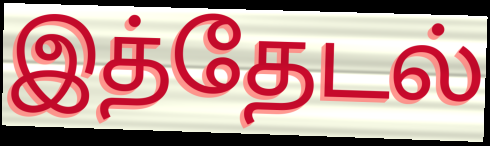
இத்தேடல்